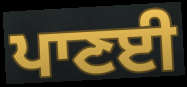
ਪਾਣਈ